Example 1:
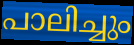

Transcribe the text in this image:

പാലിച്ചും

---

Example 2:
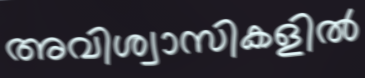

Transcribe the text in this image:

അവിശ്വാസികളിൽ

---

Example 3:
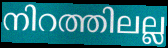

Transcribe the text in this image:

നിറത്തിലല്ല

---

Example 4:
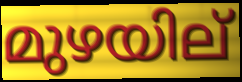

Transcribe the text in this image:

മുഴയില്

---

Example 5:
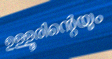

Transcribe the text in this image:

ഉള്ളൂരിന്റെയും